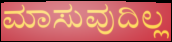
ಮಾಸುವುದಿಲ್ಲ